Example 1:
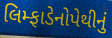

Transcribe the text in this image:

લિમ્ફાડેનોપેથીનું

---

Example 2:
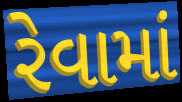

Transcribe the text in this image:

રેવામાં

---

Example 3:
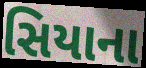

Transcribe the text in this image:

સિયાના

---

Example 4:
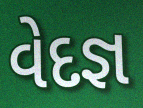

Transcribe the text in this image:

વેદજ્ઞ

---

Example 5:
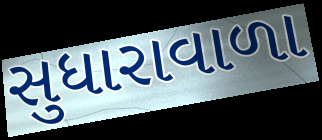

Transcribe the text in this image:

સુધારાવાળા